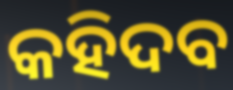
କହିଦବ